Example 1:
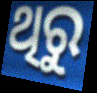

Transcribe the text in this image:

ଥିରୁ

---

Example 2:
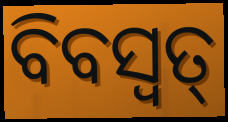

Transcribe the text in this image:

ବିବସ୍ଵତ୍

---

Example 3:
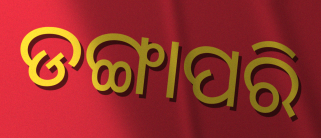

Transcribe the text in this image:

ଡଙ୍ଗାପରି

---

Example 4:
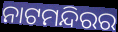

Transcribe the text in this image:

ନାଟମନ୍ଦିରର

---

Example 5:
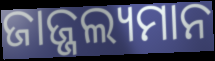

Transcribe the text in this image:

ଜାଜ୍ଜଲ୍ୟମାନ